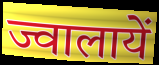
ज्वालायें